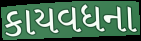
કાયવધના